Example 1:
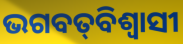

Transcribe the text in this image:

ଭଗବତ୍‌ବିଶ୍ଵାସୀ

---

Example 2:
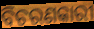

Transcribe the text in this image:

ବିଚରଣକାରୀ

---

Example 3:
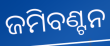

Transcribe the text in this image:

ଜମିବଣ୍ଟନ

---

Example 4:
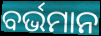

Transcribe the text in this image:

ବର୍ଭମାନ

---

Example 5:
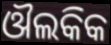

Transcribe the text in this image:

ଔଲକିକ